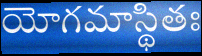
యోగమాస్థితః